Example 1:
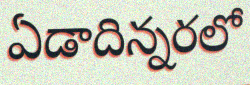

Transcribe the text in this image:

ఏడాదిన్నరలో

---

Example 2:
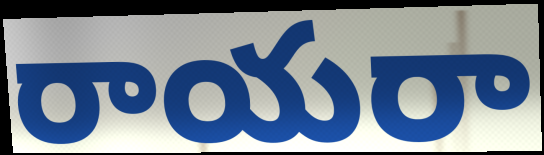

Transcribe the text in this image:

రాయరా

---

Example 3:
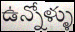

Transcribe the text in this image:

ఉన్నోళ్ళు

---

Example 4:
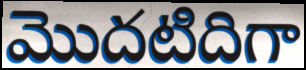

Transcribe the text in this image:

మొదటిదిగా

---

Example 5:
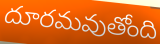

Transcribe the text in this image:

దూరమవుతోంది